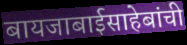
बायजाबाईसाहेबांची